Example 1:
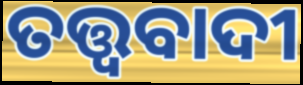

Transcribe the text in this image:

ତତ୍ତ୍ଵବାଦୀ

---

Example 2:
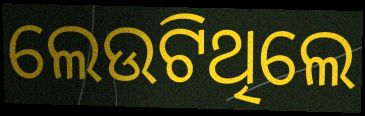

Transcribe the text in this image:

ଲେଉଟିଥିଲେ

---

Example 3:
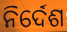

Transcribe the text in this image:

ନିର୍ଦେଶ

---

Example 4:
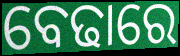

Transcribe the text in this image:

ବେଢାରେ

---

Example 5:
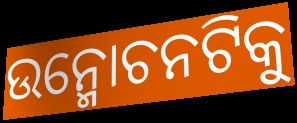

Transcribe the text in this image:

ଉନ୍ମୋଚନଟିକୁ